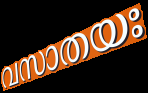
വസാതയഃ